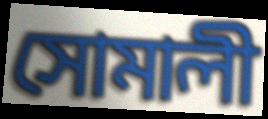
সোমালী